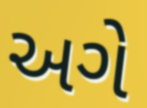
અગે